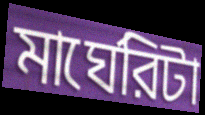
মার্ঘেরিটা